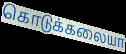
கொடுக்கலையா